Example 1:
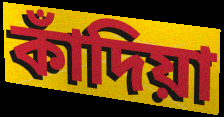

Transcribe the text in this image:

কাঁদিয়া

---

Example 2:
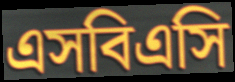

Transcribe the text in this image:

এসবিএসি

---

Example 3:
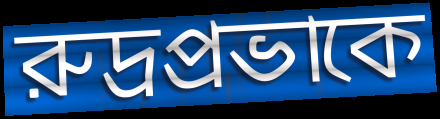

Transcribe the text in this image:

রুদ্রপ্রভাকে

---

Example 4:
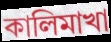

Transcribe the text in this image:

কালিমাখা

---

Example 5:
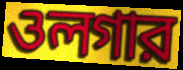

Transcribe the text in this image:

ওলগার